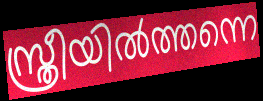
സ്ത്രീയിൽത്തന്നെ